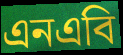
এনএবি